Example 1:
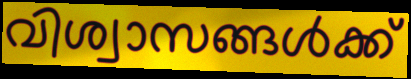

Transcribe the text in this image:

വിശ്വാസങ്ങൾക്ക്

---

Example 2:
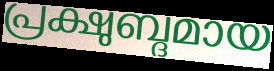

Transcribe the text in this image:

പ്രക്ഷുബ്ദമായ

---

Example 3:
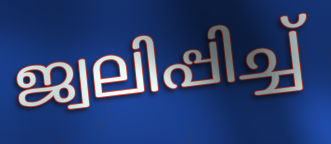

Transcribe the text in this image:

ജ്വലിപ്പിച്ച്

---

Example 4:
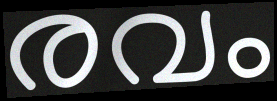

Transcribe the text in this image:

രവം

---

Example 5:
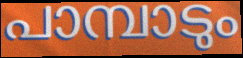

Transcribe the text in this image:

പാമ്പാടും